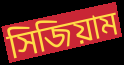
সিজিয়াম